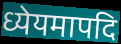
ध्येयमापदि